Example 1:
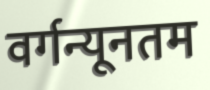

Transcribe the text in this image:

वर्गन्यूनतम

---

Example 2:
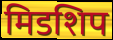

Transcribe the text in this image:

मिडशिप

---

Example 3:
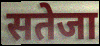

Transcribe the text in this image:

सतेजा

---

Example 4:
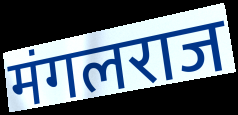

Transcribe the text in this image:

मंगलराज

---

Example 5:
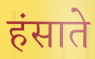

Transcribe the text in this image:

हंसाते